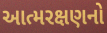
આત્મરક્ષણનો